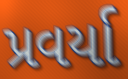
પ્રવર્યા